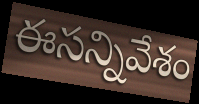
ఈసన్నివేశం